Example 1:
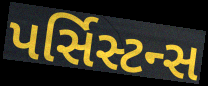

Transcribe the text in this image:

પર્સિસ્ટન્સ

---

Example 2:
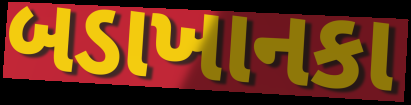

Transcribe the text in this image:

બડાખાનકા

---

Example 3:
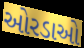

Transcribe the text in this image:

ઓરડાઓ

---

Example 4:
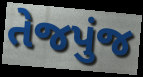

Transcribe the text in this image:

તેજપુંજ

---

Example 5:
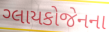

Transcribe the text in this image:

ગ્લાયકોજેનના